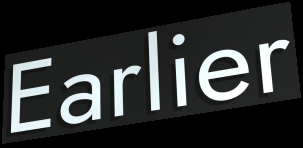
Earlier